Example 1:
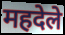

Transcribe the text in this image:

महदेले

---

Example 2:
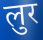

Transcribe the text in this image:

लुर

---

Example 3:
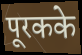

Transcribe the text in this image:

पूरकके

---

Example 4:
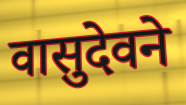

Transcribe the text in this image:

वासुदेवने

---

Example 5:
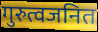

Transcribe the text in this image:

गुरुत्वजनित